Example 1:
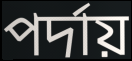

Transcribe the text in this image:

পর্দায়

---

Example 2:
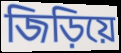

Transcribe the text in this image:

জিড়িয়ে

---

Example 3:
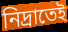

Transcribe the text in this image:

নিদ্রাতেই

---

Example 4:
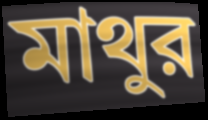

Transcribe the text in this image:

মাথুর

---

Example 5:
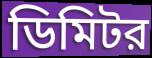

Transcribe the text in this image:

ডিমিটর